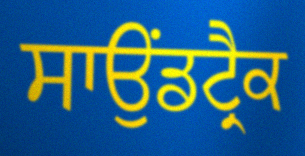
ਸਾਉਂਡਟ੍ਰੈਕ